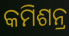
କମିଶନ୍ର